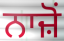
ਨਾਜ਼ੋਂ